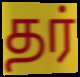
தர்